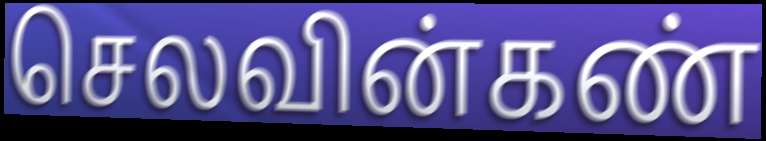
செலவின்கண்